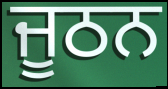
ਜੂਠਨ